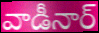
వాడీనార్